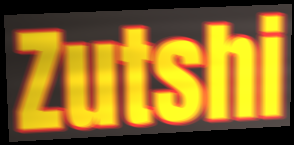
Zutshi